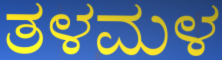
ತಳಮಳ